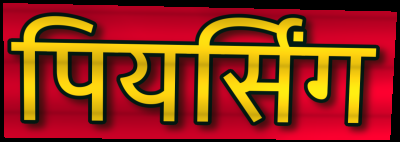
पियर्सिंग